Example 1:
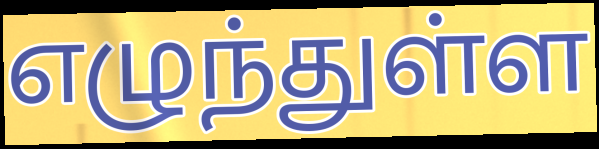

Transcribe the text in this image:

எழுந்துள்ள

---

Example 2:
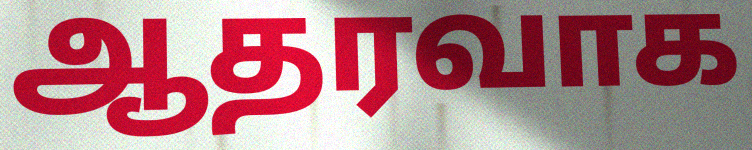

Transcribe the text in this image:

ஆதரவாக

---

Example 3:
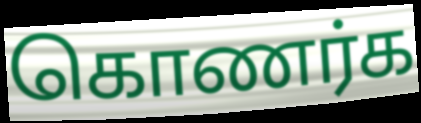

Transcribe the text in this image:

கொணர்க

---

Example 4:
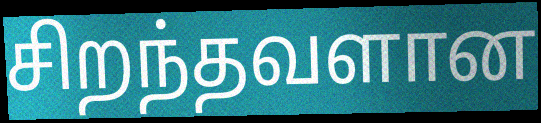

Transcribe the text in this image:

சிறந்தவளான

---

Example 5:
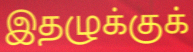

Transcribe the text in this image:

இதழுக்குக்